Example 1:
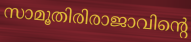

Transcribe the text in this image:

സാമൂതിരിരാജാവിന്റെ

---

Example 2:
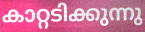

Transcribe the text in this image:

കാറ്റടിക്കുന്നു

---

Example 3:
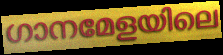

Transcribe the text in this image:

ഗാനമേളയിലെ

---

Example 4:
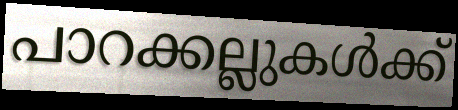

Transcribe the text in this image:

പാറക്കല്ലുകൾക്ക്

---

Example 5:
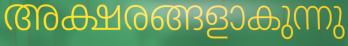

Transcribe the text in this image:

അക്ഷരങ്ങളാകുന്നു